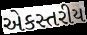
એકસ્તરીય